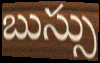
బుస్సు